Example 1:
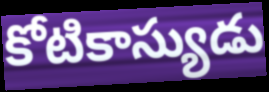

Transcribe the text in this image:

కోటికాస్యుడు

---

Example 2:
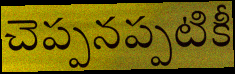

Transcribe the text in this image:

చెప్పనప్పటికీ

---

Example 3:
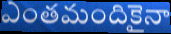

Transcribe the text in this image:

ఎంతమందికైనా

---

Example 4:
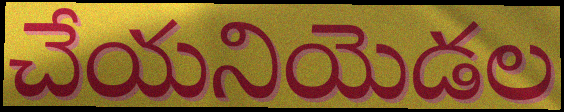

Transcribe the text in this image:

చేయనియెడల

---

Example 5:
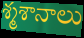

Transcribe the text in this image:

శ్మశానాలు